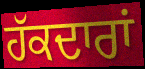
ਹੱਕਦਾਰਾਂ